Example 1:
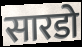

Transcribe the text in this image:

सारडो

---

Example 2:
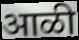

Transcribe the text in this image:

आळी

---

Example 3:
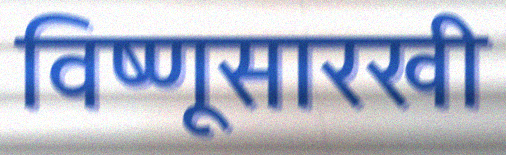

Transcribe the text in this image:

विष्णूसारखी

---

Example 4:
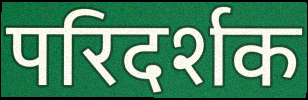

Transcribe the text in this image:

परिदर्शक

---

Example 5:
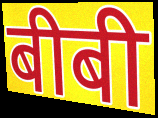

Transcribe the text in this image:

बीबी